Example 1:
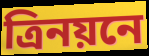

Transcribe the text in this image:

ত্রিনয়নে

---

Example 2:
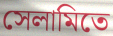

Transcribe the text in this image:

সেলামিতে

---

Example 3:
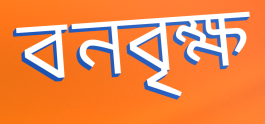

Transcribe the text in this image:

বনবৃক্ষ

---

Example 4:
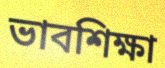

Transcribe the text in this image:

ভাবশিক্ষা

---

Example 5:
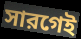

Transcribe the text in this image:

সারগেই